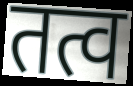
तत्व